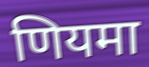
णियमा